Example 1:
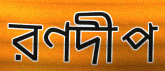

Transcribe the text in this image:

রণদীপ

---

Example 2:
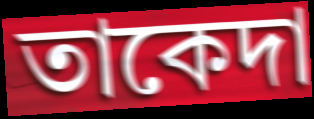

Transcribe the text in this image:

তাকেদা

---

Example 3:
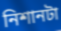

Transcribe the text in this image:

নিশানটা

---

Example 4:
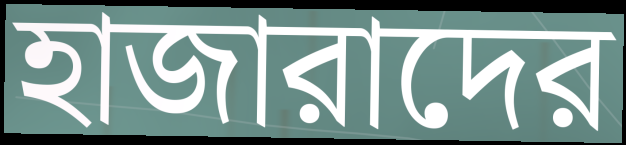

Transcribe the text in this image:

হাজারাদের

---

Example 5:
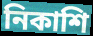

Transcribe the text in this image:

নিকাশি